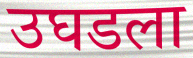
उघडला